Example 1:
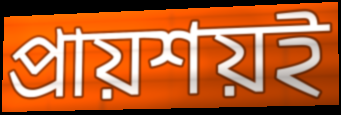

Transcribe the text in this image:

প্রায়শয়ই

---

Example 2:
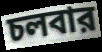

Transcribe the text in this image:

চলবার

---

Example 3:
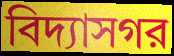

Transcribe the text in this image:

বিদ্যাসগর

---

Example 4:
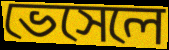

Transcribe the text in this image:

ভেসেলে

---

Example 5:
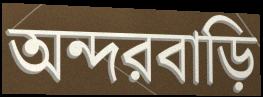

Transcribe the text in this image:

অন্দরবাড়ি